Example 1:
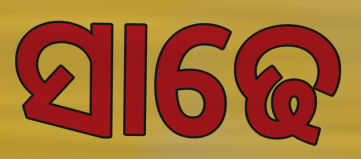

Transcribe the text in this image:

ସାଢେ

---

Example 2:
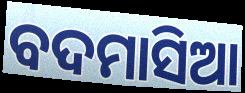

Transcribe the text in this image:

ବଦମାସିଆ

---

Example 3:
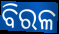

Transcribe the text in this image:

ବିରଳ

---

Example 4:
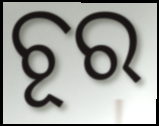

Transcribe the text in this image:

ଚୂର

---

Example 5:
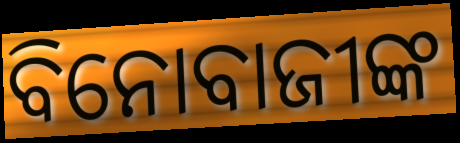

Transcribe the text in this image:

ବିନୋବାଜୀଙ୍କ